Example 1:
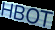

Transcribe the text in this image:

HBOT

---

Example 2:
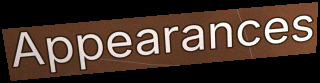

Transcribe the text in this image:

Appearances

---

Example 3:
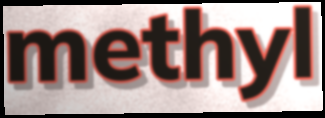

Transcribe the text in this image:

methyl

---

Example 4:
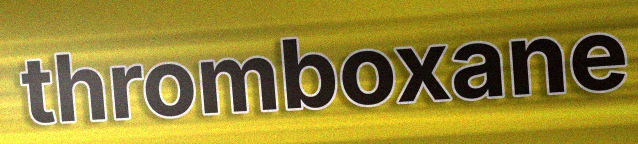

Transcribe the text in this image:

thromboxane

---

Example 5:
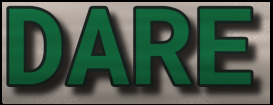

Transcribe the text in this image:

DARE